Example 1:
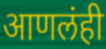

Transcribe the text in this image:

आणलंही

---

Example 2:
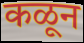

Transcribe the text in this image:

कळून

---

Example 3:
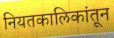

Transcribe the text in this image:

नियतकालिकांतून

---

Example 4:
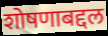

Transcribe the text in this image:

शोषणाबद्दल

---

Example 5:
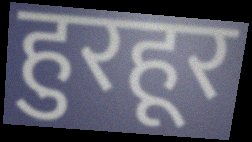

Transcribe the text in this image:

हुरहूर